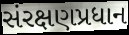
સંરક્ષણપ્રધાન